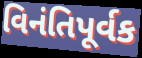
વિનંતિપૂર્વક